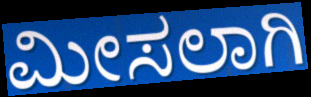
ಮೀಸಲಾಗಿ